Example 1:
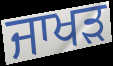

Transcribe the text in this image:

ਜਾਖੜ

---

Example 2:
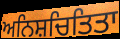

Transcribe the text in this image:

ਅਨਿਸ਼ਚਿਤਿਤਾ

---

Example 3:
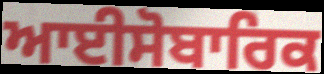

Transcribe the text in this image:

ਆਈਸੋਬਾਰਿਕ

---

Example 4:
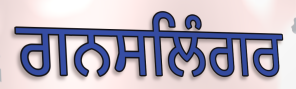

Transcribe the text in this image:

ਗਨਸਲਿੰਗਰ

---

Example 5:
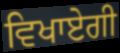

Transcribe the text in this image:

ਵਿਖਾਏਗੀ